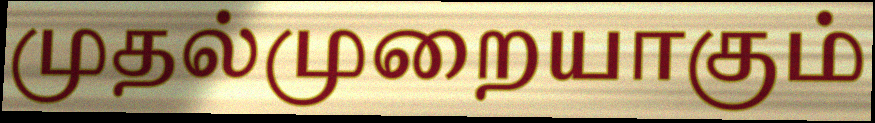
முதல்முறையாகும்